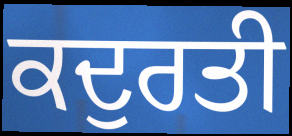
ਕਦੁਰਤੀ